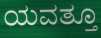
ಯವತ್ತೂ